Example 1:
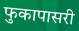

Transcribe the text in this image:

फुकापासरी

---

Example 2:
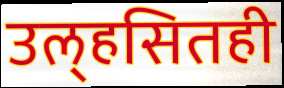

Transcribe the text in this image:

उल्हसितही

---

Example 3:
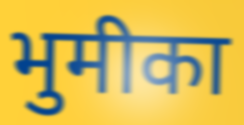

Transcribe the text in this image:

भुमीका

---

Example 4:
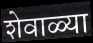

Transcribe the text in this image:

शेवाळ्या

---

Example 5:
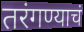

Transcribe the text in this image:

तरंगण्याचं